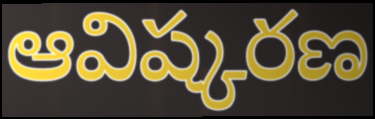
ఆవిష్కరణ